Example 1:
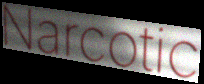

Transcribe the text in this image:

Narcotic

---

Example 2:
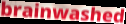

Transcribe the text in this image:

brainwashed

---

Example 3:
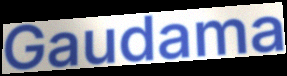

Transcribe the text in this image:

Gaudama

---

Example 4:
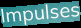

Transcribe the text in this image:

Impulses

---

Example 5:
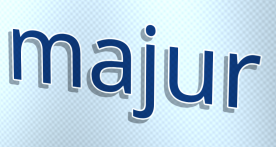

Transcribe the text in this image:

majur